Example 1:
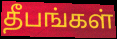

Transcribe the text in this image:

தீபங்கள்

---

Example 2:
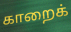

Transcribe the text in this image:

காறைக்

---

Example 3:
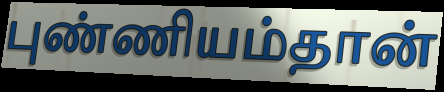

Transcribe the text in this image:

புண்ணியம்தான்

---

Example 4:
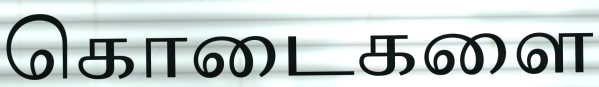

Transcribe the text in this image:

கொடைகளை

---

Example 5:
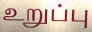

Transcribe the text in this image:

உறுப்பு